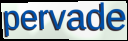
pervade